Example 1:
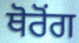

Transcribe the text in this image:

ਥੋਰੋਂਗ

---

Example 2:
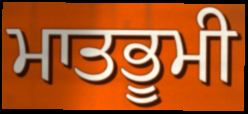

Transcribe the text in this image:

ਮਾਤਭੂਮੀ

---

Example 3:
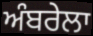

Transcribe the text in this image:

ਅੰਬਰੇਲਾ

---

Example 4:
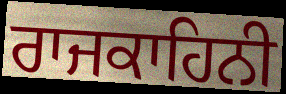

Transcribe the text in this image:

ਰਾਜਕਾਹਿਨੀ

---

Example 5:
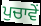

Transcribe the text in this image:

ਪੁਚਾਵੇਂ